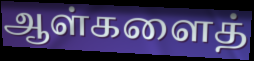
ஆள்களைத்